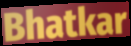
Bhatkar